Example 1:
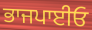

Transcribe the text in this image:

ਭਾਜਪਾਈਓ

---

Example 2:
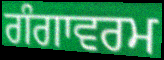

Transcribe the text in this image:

ਗੰਗਾਵਰਮ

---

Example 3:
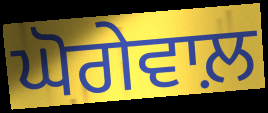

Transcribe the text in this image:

ਘੋਗੇਵਾਲ਼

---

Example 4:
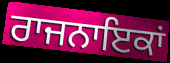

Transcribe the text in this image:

ਰਾਜਨਾਇਕਾਂ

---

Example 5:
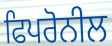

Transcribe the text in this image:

ਫਿਪਰੋਨੀਲ